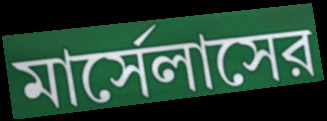
মার্সেলাসের